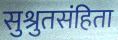
सुश्रुतसंहिता